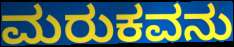
ಮರುಕವನು